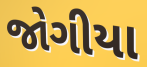
જોગીયા